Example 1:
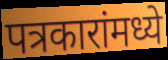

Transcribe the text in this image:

पत्रकारांमध्ये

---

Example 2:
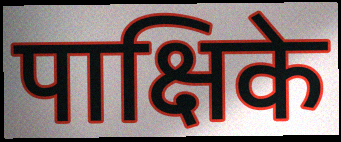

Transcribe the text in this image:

पाक्षिके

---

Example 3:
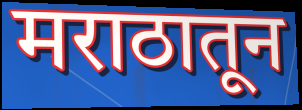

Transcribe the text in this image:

मराठातून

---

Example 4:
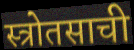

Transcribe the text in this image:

स्त्रोतसाची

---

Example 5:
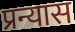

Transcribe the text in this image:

प्रन्यास